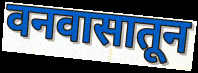
वनवासातून